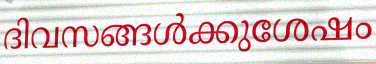
ദിവസങ്ങൾക്കുശേഷം